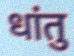
धांतु